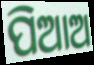
ପିଆଅ